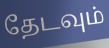
தேடவும்